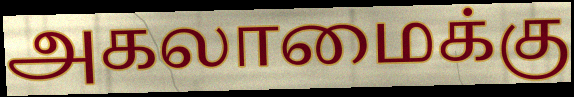
அகலாமைக்கு